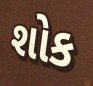
શોક